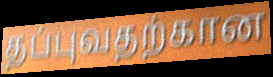
தப்புவதற்கான